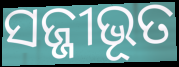
ସଜ୍ଜୀଭୂତ